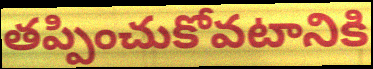
తప్పించుకోవటానికి